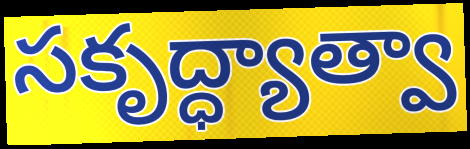
సకృద్ధ్యాత్వా